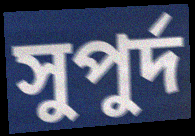
সুপুর্দ